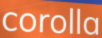
corolla